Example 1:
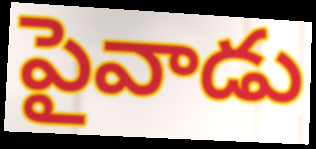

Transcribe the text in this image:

పైవాడు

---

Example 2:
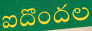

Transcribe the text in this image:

ఐదొందల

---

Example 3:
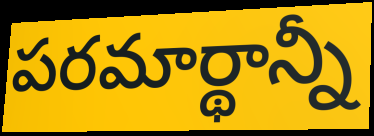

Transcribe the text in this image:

పరమార్థాన్నీ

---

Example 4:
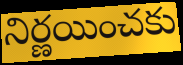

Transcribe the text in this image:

నిర్ణయించకు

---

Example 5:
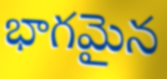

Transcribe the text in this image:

భాగమైన